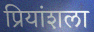
प्रियांशला